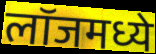
लॉजमध्ये